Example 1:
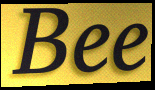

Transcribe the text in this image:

Bee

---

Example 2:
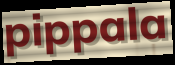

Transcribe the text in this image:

pippala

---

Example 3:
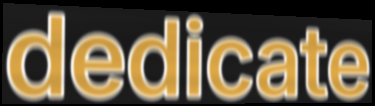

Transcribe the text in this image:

dedicate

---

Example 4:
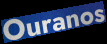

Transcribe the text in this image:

Ouranos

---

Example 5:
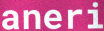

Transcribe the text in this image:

aneri